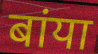
बांया